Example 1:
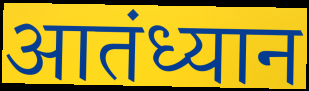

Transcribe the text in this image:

आतंध्यान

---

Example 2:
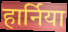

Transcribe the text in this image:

हार्निया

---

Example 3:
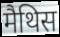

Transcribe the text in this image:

मैथिस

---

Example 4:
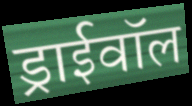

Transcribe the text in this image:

ड्राईवॉल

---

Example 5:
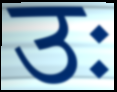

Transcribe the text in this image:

उः